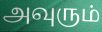
அவுரும்